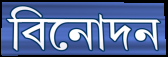
বিনোদন